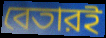
বেতারই